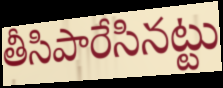
తీసిపారేసినట్టు